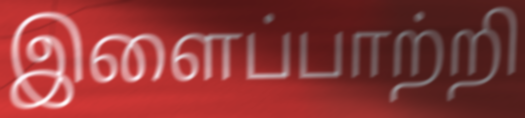
இளைப்பாற்றி